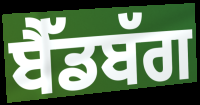
ਬੈੱਡਬੱਗ